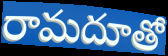
రామదూతో